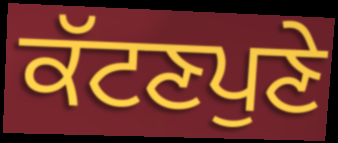
ਕੱਟਣਪੁਣੇ